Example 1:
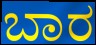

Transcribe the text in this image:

ಬಾರ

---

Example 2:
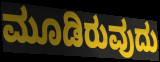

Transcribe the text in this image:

ಮೂಡಿರುವುದು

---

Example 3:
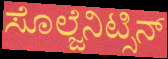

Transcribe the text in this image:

ಸೊಲ್ಜೆನಿಟ್ಸಿನ್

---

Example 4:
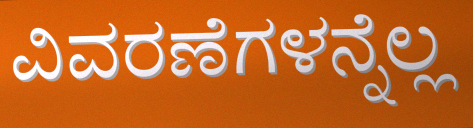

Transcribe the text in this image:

ವಿವರಣೆಗಳನ್ನೆಲ್ಲ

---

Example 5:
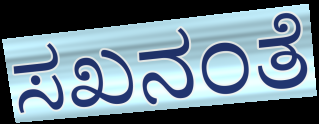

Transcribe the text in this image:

ಸಖನಂತೆ